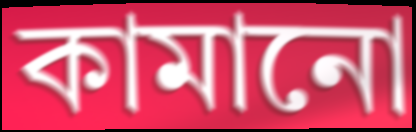
কামানো